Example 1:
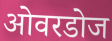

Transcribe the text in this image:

ओवरडोज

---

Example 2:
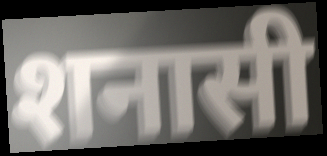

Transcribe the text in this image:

शनासी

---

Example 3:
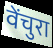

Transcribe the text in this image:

वेंचुरा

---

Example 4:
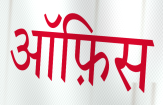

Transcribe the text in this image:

ऑफ़िस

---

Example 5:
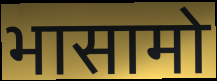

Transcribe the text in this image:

भासामो